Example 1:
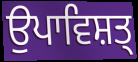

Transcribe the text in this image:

ਉਪਾਵਿਸ਼ਤ੍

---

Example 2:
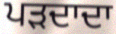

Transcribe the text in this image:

ਪੜਦਾਦਾ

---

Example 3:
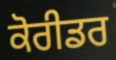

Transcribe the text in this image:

ਕੋਰੀਡਰ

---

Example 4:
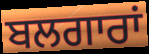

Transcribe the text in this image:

ਬਲਗਾਰਾਂ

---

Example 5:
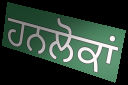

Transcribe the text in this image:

ਹਨਲੋਕਾਂ